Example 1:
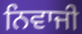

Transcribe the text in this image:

ਨਿਵਾਜੀ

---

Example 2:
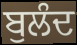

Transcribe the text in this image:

ਬੁਲੰਦ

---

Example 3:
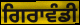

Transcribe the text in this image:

ਗਿਰਾਵੰਡੀ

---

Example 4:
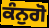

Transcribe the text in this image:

ਕੰਨੁਗੋ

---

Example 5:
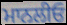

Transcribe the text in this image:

ਮਾਨਲੀਓ